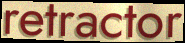
retractor